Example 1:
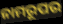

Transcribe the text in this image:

ନାମରୂପର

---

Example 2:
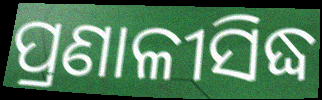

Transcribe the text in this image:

ପ୍ରଣାଳୀସିଦ୍ଧ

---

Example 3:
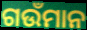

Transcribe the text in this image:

ଗଉଁମାନ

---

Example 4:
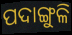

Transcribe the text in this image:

ପଦାଙ୍ଗୁଳି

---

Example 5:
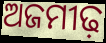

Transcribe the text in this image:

ଅଜମୀଢ଼